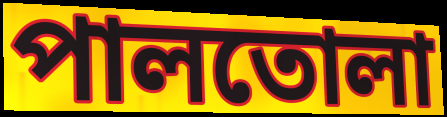
পালতোলা